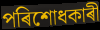
পৰিশোধকাৰী